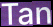
Tan